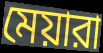
মেয়ারা